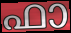
ഫാ